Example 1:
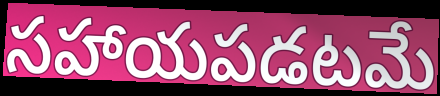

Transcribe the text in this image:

సహాయపడటమే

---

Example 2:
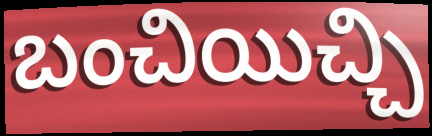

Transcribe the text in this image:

బంచియిచ్చి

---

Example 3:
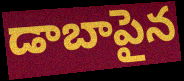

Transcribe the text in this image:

డాబాపైన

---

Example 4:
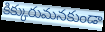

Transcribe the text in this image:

కిక్కురుమనకుండా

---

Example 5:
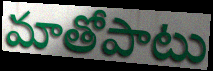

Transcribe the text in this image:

మాతోపాటు